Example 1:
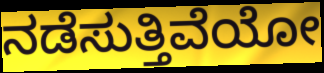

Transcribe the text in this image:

ನಡೆಸುತ್ತಿವೆಯೋ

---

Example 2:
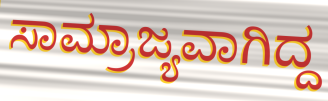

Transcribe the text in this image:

ಸಾಮ್ರಾಜ್ಯವಾಗಿದ್ದ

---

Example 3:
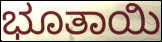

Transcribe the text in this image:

ಭೂತಾಯಿ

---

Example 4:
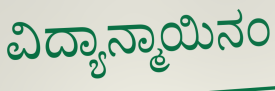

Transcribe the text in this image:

ವಿದ್ಯಾನ್ಮಾಯಿನಂ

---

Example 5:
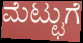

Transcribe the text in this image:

ಮೆಟ್ಟುಗೆ